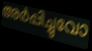
അർപ്പിച്ചുവോ